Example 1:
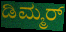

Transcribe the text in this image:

ಡಿಮ್ಮರ್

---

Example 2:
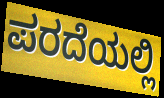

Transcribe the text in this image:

ಪರದೆಯಲ್ಲಿ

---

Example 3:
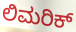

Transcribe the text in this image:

ಲಿಮರಿಕ್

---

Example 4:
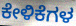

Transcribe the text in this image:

ಕೇಳಿಕೆಗಳ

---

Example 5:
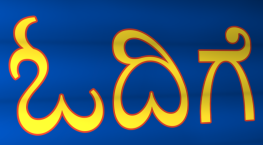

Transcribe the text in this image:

ಓದಿಗೆ